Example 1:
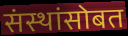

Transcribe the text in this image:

संस्थांसोबत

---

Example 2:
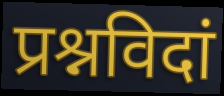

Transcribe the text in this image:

प्रश्नविदां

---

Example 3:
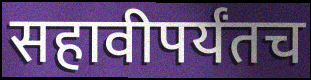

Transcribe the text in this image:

सहावीपर्यंतच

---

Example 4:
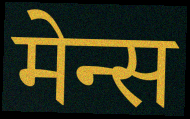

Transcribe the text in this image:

मेन्स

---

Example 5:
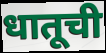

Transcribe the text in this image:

धातूची